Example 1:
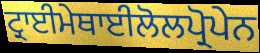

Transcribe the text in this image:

ਟ੍ਰਾਈਮੇਥਾਈਲੋਲਪ੍ਰੋਪੇਨ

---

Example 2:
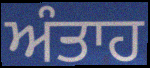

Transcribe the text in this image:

ਅੰਤਾਹ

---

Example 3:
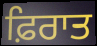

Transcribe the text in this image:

ਫ਼ਿਰਾਤ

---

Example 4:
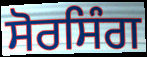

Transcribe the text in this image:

ਸੋਰਸਿੰਗ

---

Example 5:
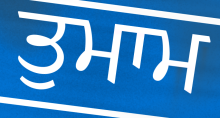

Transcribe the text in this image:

ਤੁਮਾਮ